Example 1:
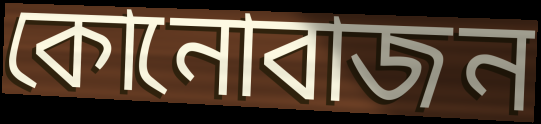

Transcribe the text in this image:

কোনোবাজন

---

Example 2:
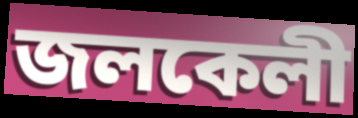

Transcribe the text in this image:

জলকেলী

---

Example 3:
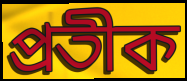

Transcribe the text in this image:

প্ৰতীক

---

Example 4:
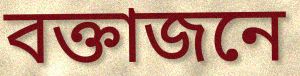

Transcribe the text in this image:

বক্তাজনে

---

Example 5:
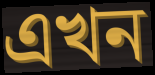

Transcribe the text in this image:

এখন